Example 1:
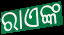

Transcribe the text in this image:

ରାଏଙ୍କ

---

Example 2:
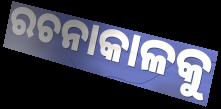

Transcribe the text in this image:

ରଚନାକାଳକୁ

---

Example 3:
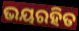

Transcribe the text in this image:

ଭୟରହିତ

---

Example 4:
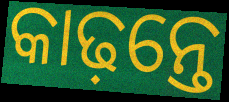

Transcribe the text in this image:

କାଢ଼ନ୍ତେ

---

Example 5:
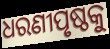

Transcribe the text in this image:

ଧରଣୀପୃଷ୍ଠକୁ